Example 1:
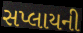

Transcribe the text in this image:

સપ્લાયની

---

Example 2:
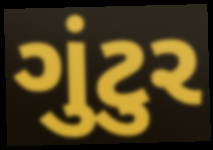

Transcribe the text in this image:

ગુંટુર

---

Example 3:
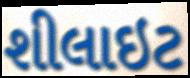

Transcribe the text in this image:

શીલાઇટ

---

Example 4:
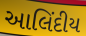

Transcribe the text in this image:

આલિંદીય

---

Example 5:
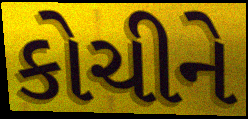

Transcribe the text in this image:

કોચીને